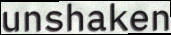
unshaken